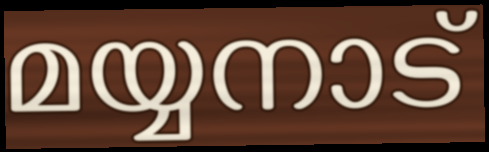
മയ്യനാട്